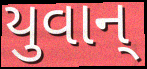
યુવાન્